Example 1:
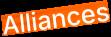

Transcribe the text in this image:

Alliances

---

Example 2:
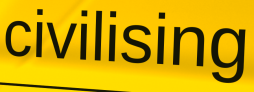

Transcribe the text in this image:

civilising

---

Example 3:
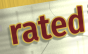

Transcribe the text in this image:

rated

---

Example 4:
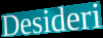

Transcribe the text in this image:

Desideri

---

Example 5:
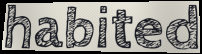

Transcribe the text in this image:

habited